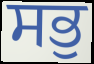
ਸਭੁ